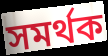
সমৰ্থক